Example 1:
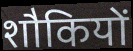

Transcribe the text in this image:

शौकियों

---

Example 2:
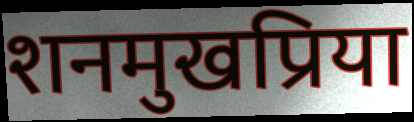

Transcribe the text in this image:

शनमुखप्रिया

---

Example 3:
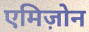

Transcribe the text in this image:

एमिज़ोन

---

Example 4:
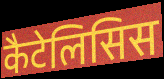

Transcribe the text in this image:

कैटेलिसिस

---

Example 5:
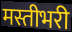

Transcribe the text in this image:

मस्तीभरी